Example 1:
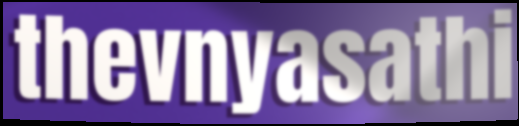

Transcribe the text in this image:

thevnyasathi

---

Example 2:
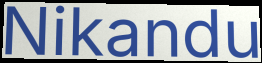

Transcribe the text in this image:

Nikandu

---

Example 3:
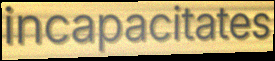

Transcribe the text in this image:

incapacitates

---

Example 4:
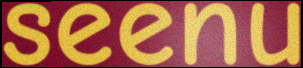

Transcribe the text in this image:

seenu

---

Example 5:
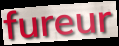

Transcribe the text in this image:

fureur